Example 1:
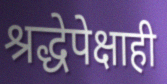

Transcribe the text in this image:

श्रद्धेपेक्षाही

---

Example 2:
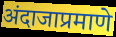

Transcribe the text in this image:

अंदाजाप्रमाणे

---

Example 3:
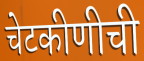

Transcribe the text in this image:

चेटकीणीची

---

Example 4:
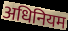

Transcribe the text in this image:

अधिनियम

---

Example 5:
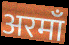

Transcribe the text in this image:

अरमाँ